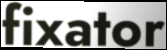
fixator